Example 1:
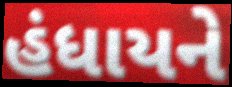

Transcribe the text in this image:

હંધાયને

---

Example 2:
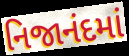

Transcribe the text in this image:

નિજાનંદમાં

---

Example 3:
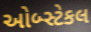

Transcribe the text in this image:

ઓબ્સ્ટેકલ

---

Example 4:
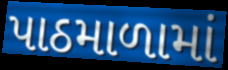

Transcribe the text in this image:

પાઠમાળામાં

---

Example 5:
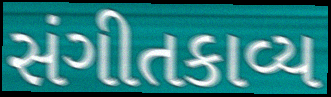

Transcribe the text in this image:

સંગીતકાવ્ય